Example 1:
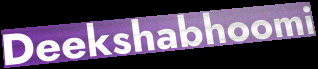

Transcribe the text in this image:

Deekshabhoomi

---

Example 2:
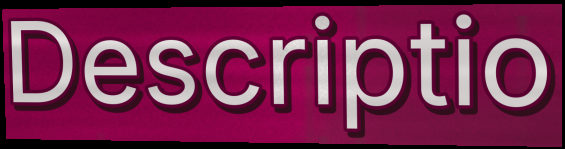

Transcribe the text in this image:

Descriptio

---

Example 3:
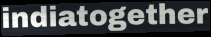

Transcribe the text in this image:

indiatogether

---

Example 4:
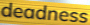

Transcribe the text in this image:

deadness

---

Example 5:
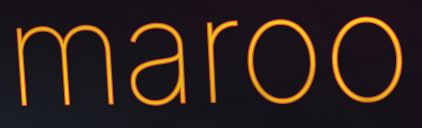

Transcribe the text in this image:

maroo